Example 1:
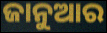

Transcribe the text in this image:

ଜାନୁଆର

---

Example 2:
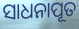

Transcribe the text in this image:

ସାଧନାପୂତ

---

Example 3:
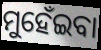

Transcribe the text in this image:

ମୁହେଁଇବା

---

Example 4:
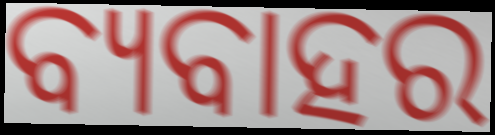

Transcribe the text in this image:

ବ୍ୟବାହର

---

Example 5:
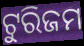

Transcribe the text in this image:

ଟୁରିଜମ